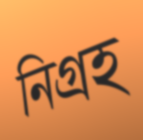
নিগ্রহ